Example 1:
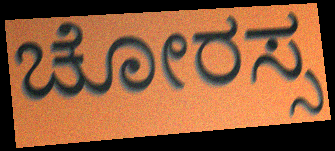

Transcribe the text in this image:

ಚೋರಸ್ಸ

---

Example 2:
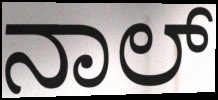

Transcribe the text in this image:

ನಾಲ್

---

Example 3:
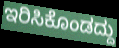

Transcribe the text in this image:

ಇರಿಸಿಕೊಂಡದ್ದು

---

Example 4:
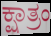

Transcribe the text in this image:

ಕ್ಷಾತ್ರಂ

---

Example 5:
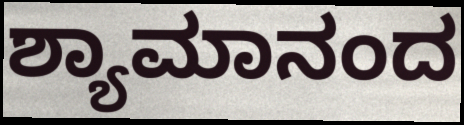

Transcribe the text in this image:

ಶ್ಯಾಮಾನಂದ